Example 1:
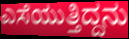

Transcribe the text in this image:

ಎಸೆಯುತ್ತಿದ್ದನು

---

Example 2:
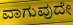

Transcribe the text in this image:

ವಾಗುವುದೇ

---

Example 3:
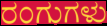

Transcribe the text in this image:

ರಂಗುಗಳು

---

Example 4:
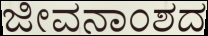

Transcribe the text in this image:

ಜೀವನಾಂಶದ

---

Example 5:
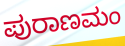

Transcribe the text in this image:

ಪುರಾಣಮಂ